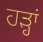
ਹਡ਼੍ਹਾਂ